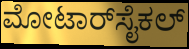
ಮೋಟಾರ್‌ಸೈಕಲ್